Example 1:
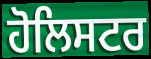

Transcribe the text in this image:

ਹੋਲਿਸਟਰ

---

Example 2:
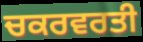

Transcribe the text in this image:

ਚਕਰਵਰਤੀ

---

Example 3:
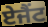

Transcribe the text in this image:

ਏਜੈਂਟ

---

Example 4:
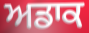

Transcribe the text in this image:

ਅਡਾਕ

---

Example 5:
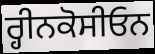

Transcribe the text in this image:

ਰ੍ਹੀਨਕੋਸੀਓਨ